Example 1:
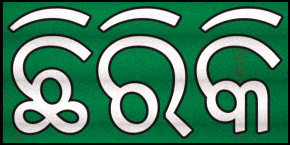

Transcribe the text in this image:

ଛିରିକି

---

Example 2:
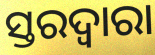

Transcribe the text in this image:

ସ୍ତରଦ୍ୱାରା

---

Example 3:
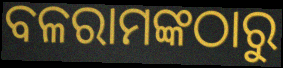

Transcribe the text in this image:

ବଳରାମଙ୍କଠାରୁ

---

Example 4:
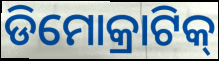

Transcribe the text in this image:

ଡିମୋକ୍ରାଟିକ୍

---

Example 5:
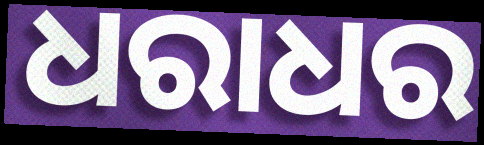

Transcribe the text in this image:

ଧରାଧର